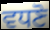
ਵਧਣੋ